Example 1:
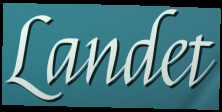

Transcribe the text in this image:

Landet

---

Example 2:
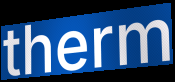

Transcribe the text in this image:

therm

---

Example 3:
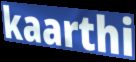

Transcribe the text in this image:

kaarthi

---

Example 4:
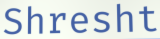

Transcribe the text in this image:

Shresht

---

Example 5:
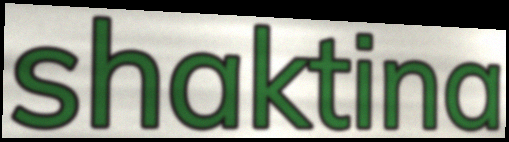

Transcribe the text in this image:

shaktina